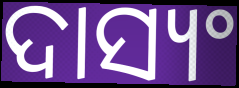
ଦାସ୍ୟଂ